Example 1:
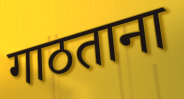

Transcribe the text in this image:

गाठताना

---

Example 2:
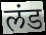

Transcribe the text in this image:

लंड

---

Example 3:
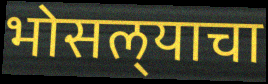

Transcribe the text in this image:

भोसल्याचा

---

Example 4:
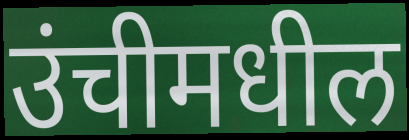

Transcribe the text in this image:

उंचीमधील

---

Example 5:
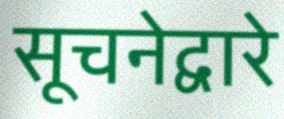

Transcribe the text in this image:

सूचनेद्वारे